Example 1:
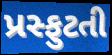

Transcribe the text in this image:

પ્રસ્ફુટતી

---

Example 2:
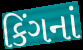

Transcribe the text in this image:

કિંગનાં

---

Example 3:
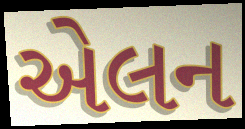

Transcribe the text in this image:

એલન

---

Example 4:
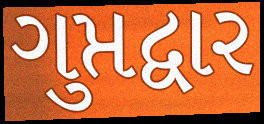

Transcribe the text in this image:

ગુપ્તદ્વાર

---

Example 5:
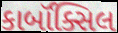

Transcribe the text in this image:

કાર્બૉક્સિલ